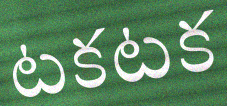
టకటక